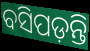
ବସିପଡ଼ନ୍ତି